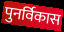
पुनर्विकास